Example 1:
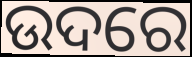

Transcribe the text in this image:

ଉଦରେ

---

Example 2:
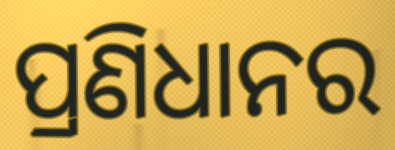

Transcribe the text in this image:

ପ୍ରଣିଧାନର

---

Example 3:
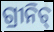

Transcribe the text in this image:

ଗ୍ରୀନିଚ୍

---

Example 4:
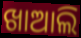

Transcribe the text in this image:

ଖାଆଲି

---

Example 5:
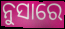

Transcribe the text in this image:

ନୁସାରେ